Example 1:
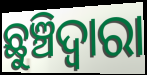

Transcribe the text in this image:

ଛୁଞ୍ଚିଦ୍ଵାରା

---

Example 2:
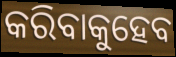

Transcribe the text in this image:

କରିବାକୁହେବ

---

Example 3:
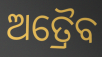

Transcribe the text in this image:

ଅତ୍ରୈବ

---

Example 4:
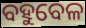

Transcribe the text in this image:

ବହୁବେଳ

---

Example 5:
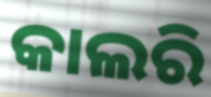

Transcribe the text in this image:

କାଲରି